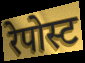
रेपोस्ट